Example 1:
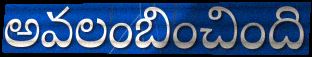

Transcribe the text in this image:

అవలంబించింది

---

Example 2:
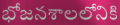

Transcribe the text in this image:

భోజనశాలలోనికి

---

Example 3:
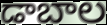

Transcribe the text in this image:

డాబాల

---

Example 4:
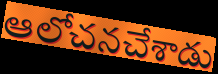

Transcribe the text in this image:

ఆలోచనచేశాడు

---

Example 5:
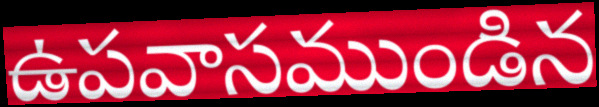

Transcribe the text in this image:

ఉపవాసముండిన